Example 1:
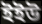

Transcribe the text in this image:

ইইউ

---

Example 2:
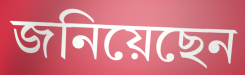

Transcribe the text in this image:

জনিয়েছেন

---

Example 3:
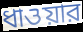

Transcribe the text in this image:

ধাওয়ার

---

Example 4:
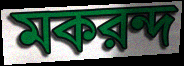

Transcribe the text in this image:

মকরন্দ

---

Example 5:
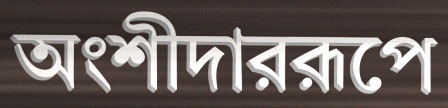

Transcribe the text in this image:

অংশীদাররূপে